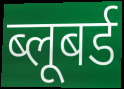
ब्लूबर्ड